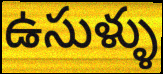
ఉసుళ్ళు